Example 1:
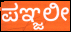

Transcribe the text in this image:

ಪಞ್ಜಲೀ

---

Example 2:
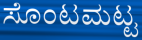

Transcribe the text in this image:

ಸೊಂಟಮಟ್ಟ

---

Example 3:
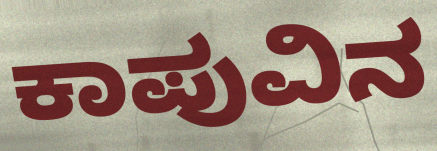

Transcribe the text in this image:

ಕಾಪುವಿನ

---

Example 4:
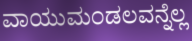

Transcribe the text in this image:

ವಾಯುಮಂಡಲವನ್ನೆಲ್ಲ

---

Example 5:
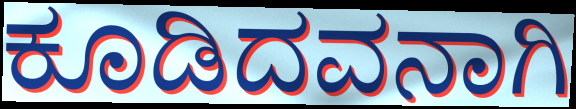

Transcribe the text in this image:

ಕೂಡಿದವನಾಗಿ